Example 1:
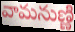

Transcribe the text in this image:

వామనుణ్ణి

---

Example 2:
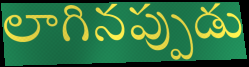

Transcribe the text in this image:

లాగినప్పుడు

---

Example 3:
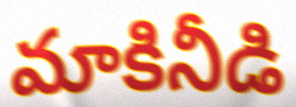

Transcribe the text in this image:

మాకినీడి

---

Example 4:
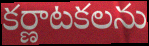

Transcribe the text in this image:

కర్ణాటకలను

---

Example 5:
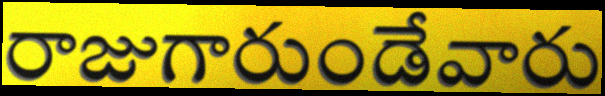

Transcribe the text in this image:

రాజుగారుండేవారు